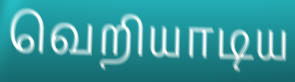
வெறியாடிய